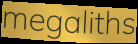
megaliths